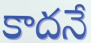
కాదనే